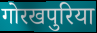
गोरखपुरिया